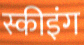
स्कीइंग